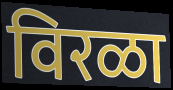
विरळा